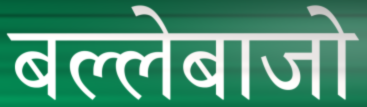
बल्लेबाजो